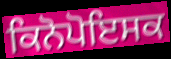
ਕਿਨੋਪੋਇਸਕ